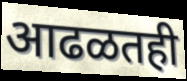
आढळतही